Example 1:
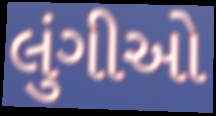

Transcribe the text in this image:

લુંગીઓ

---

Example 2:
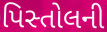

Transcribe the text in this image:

પિસ્તોલની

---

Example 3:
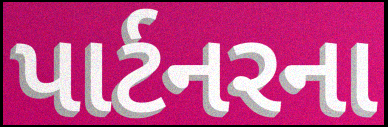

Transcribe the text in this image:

પાર્ટનરના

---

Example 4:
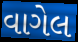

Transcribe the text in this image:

વાગેલ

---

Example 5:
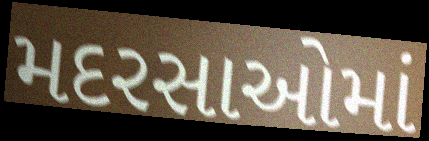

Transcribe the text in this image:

મદરસાઓમાં